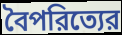
বৈপরিত্যের